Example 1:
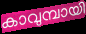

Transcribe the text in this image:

കാവുമ്പായി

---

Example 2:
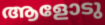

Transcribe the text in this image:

ആളോടു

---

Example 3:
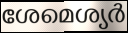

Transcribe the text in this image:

ശേമെശ്യർ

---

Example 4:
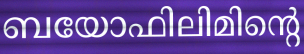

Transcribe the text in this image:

ബയോഫിലിമിന്റെ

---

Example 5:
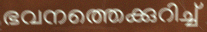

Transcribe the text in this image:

ഭവനത്തെക്കുറിച്ച്